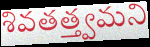
శివతత్త్వమని